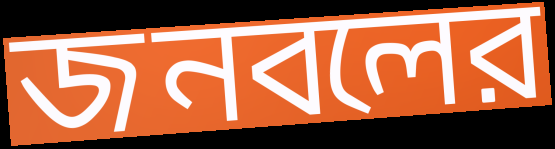
জনবলের